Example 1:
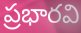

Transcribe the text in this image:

ప్రభారవి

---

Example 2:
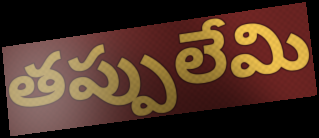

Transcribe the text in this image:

తప్పులేమి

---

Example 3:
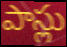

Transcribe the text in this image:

పాస్లు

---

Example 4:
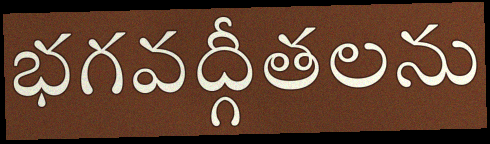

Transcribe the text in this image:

భగవద్గీతలను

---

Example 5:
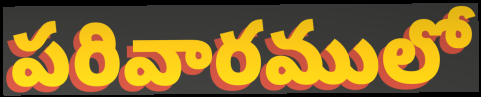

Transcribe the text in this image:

పరివారములో